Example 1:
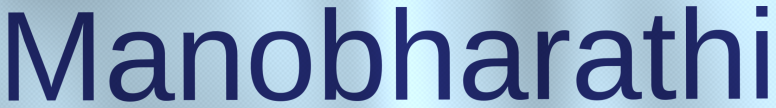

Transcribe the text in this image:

Manobharathi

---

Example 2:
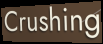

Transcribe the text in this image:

Crushing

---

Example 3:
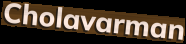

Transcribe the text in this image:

Cholavarman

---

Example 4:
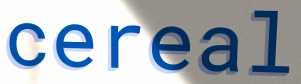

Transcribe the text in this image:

cereal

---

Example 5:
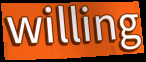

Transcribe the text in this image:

willing